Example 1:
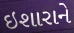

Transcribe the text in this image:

ઇશારાને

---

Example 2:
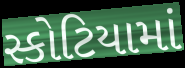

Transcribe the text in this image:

સ્કોટિયામાં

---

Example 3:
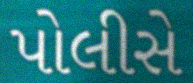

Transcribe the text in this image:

પોલીસે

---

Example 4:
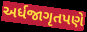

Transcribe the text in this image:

અર્ધજાગૃતપણે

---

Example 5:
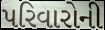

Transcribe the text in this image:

પરિવારોની